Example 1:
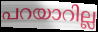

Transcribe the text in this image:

പറയാറില്ല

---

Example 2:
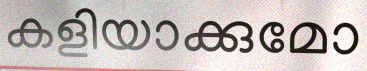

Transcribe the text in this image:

കളിയാക്കുമോ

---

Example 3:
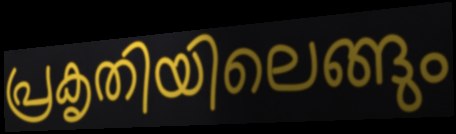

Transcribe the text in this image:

പ്രകൃതിയിലെങ്ങും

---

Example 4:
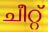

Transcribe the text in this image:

ചീറ്റ്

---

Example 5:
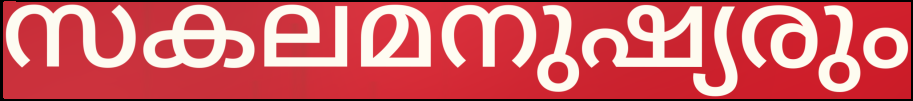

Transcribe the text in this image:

സകലമനുഷ്യരും